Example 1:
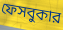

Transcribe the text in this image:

ফেসবুকার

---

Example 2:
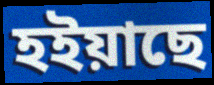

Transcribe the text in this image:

হইয়াছে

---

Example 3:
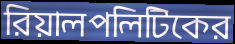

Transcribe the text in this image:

রিয়ালপলিটিকের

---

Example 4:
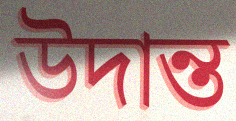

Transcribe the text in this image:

উদান্ত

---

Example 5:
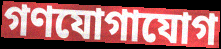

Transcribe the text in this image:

গণযোগাযোগ